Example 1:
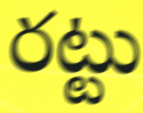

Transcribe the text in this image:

రట్టు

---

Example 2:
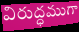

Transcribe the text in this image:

విరుద్ధముగా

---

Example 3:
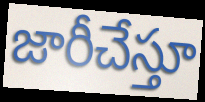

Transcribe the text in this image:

జారీచేస్తూ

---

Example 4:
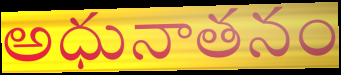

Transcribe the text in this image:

అధునాతనం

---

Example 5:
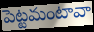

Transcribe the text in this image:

పెట్టమంటావా